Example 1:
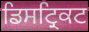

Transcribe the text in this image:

ਡਿਸਟ੍ਰਿਕਟ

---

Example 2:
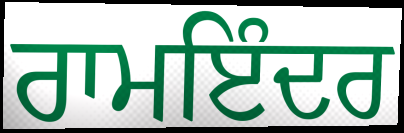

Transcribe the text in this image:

ਰਾਮਇੰਦਰ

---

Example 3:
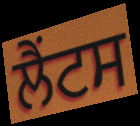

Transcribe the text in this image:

ਲੈਂਟਸ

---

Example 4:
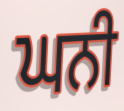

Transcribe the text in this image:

ਘਨੀ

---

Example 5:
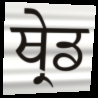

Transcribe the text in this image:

ਥ੍ਰੇਡ